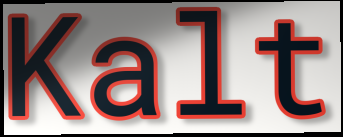
Kalt